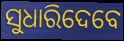
ସୁଧାରିଦେବେ